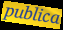
publica